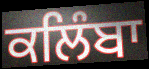
ਕਲਿੰਬਾ